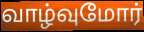
வாழ்வுமோர்